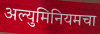
अल्युमिनियमचा